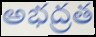
అభద్రత